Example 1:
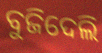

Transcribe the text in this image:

ବୁଜିଦେଲି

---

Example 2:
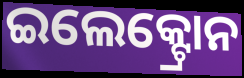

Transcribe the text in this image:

ଇଲେକ୍ଟ୍ରୋନ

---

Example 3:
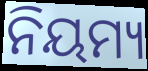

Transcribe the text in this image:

ନିୟମ୍ୟ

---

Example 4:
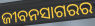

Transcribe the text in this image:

ଜୀବନସାଗରର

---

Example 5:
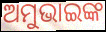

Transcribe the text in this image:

ଅମୁଭାଇଙ୍କ